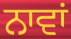
ਨਾਵਾਂ